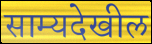
साम्यदेखील